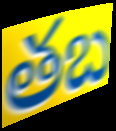
తబ